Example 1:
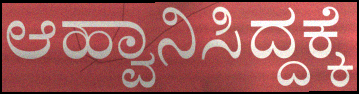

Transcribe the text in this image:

ಆಹ್ವಾನಿಸಿದ್ದಕ್ಕೆ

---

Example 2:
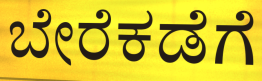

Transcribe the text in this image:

ಬೇರೆಕಡೆಗೆ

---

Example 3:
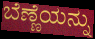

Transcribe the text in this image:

ಬೆಣ್ಣೆಯನ್ನು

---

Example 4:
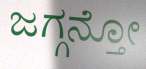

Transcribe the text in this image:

ಜಗ್ಗನ್ತೋ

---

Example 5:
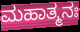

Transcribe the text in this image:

ಮಹಾತ್ಮನಃ